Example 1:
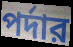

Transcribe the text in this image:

পর্দার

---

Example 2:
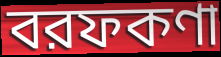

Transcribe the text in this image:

বরফকণা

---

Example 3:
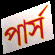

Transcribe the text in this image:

পার্স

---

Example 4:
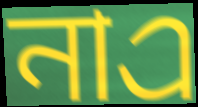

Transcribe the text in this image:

নাএ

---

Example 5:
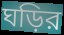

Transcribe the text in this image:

ঘড়ির